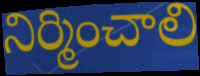
నిర్మించాలి